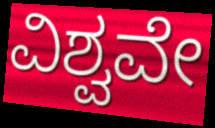
ವಿಶ್ವವೇ